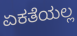
ಏಕತೆಯಲ್ಲ